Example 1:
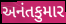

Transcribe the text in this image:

અનંતકુમાર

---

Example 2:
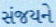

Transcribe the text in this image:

સંજયને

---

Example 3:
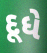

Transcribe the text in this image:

દૂધે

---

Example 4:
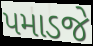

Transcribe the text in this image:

પમાડજે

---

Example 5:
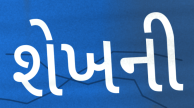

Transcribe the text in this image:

શેખની